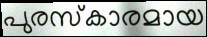
പുരസ്കാരമായ